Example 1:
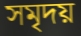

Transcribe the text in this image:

সমৃদয়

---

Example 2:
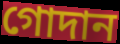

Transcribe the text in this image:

গোদান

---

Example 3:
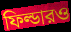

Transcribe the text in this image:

ফিল্ডারও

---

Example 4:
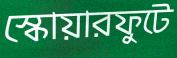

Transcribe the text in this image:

স্কোয়ারফুটে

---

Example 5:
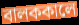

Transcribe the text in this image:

বালককালে